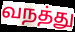
வநத்து